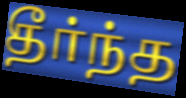
தீர்ந்த